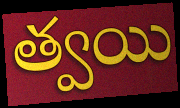
త్వయి